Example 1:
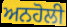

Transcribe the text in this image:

ਅਨਹੋਲੀ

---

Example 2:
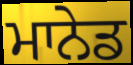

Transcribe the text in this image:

ਮਾਨੇਡ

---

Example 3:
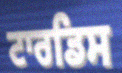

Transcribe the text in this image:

ਟਾਰਡਿਸ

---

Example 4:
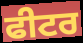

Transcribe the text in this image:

ਫੀਟਰ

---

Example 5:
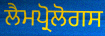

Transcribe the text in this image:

ਲੈਮਪ੍ਰੋਲੋਗਸ